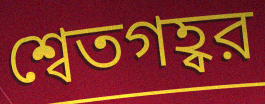
শ্বেতগহ্বর